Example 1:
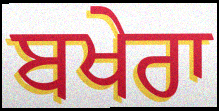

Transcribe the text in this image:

ਬਖੇਰਾ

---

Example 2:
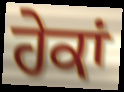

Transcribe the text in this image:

ਹੇਕਾਂ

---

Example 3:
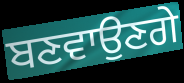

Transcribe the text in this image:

ਬਣਵਾਉਣਗੇ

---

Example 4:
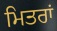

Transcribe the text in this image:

ਮਿਤਰਾਂ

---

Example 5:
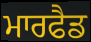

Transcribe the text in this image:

ਮਾਰਫੈਡ